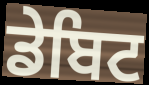
ਡੇਬਿਟ